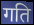
गति